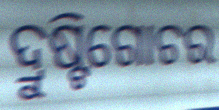
ଦ୍ରୁଷ୍ଟିଗୋଚର